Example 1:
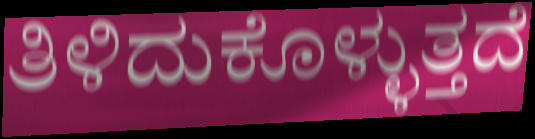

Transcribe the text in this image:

ತಿಳಿದುಕೊಳ್ಳುತ್ತದೆ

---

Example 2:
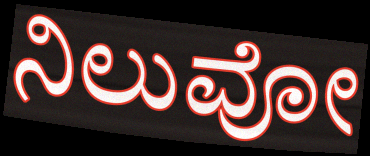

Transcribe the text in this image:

ನಿಲುವೋ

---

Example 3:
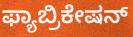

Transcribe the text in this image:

ಫ್ಯಾಬ್ರಿಕೇಷನ್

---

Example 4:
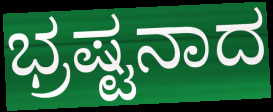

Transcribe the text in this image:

ಭ್ರಷ್ಟನಾದ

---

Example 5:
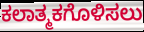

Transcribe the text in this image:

ಕಲಾತ್ಮಕಗೊಳಿಸಲು